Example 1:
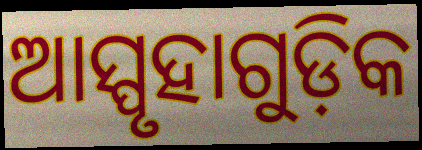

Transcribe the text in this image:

ଆସ୍ପୃହାଗୁଡ଼ିକ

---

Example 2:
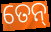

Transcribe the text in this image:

ତେନ୍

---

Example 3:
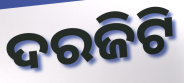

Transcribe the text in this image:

ଦରଜିଟି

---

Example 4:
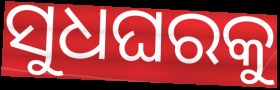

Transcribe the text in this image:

ସୁଧଘରକୁ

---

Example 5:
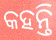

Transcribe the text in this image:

କହନ୍ତି